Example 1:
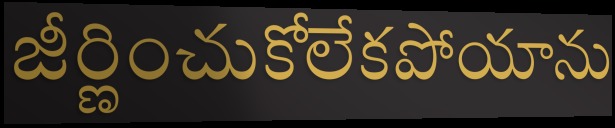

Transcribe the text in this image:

జీర్ణించుకోలేకపోయాను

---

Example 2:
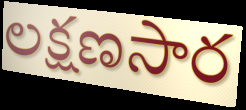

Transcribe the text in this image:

లక్షణసార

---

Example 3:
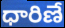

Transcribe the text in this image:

ధారిణే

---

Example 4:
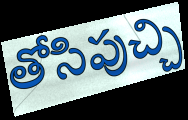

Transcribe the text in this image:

తోసిపుచ్చి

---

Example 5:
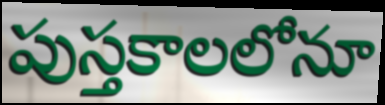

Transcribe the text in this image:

పుస్తకాలలోనూ